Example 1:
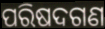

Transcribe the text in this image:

ପରିଷଦଗଣ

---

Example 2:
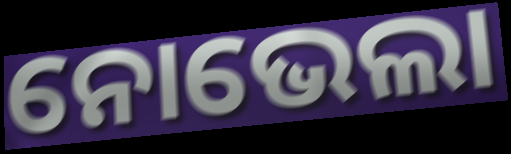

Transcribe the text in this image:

ନୋଭେଲା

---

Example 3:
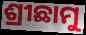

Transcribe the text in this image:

ଶ୍ରୀଛାମୁ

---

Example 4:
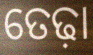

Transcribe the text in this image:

ତେଢ଼ା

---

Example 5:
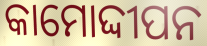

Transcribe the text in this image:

କାମୋଦ୍ଦୀପନ